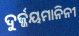
ଦୁର୍ଜ୍ଜୟମାନିନୀ